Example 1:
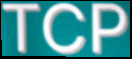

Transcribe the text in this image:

TCP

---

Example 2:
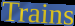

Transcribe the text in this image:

Trains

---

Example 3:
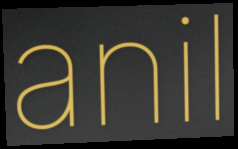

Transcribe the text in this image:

anil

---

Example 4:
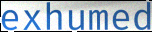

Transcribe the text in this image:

exhumed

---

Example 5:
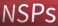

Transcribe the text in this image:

NSPs